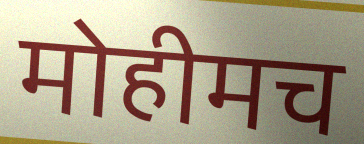
मोहीमच